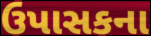
ઉપાસકના